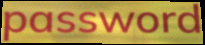
password